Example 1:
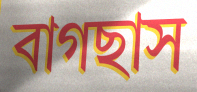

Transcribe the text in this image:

বাগছাস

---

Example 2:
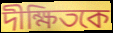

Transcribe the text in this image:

দীক্ষিতকে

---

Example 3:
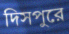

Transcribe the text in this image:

দিসপুরে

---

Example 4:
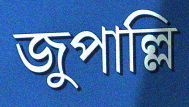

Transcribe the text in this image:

জুপাল্লি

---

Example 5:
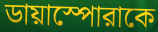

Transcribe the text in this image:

ডায়াস্পোরাকে